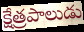
క్షేత్రపాలుడు